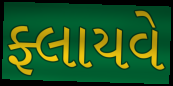
ફ્લાયવે